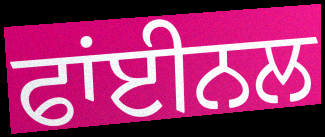
ਫਾਂਈਨਲ